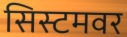
सिस्टमवर